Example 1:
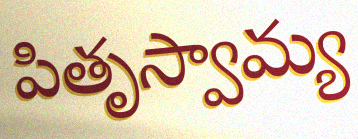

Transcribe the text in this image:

పితృస్వామ్య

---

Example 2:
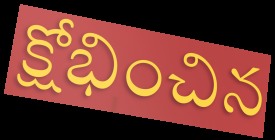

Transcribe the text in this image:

క్షోభించిన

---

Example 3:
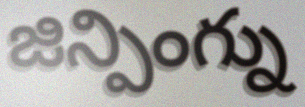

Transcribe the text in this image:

జిన్పింగ్ను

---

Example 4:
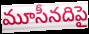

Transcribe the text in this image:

మూసీనదిపై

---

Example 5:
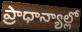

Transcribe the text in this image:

ప్రాధాన్యాల్లో